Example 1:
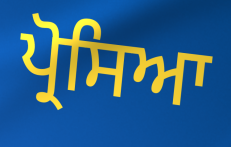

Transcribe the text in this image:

ਪ੍ਰੋਸਿਆ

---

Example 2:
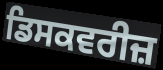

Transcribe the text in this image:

ਡਿਸਕਵਰੀਜ਼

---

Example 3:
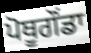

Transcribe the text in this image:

ਪੋਥੂਗੌਂਡਾ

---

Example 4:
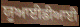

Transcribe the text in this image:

ਯੂਆਈਡੀਆਈ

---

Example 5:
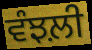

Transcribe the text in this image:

ਵੰਝਲ਼ੀ